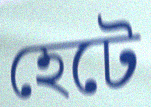
হেটে